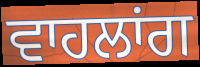
ਵਾਹਲਾਂਗ